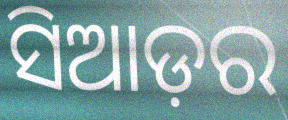
ସିଆଡ଼ର